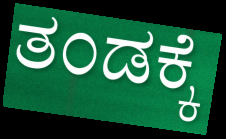
ತಂಡಕ್ಕೆ